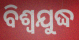
ବିଶ୍ୱଯୁଦ୍ଧ